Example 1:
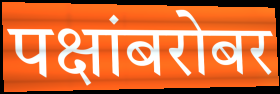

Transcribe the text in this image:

पक्षांबरोबर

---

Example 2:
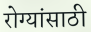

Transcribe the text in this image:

रोग्यांसाठी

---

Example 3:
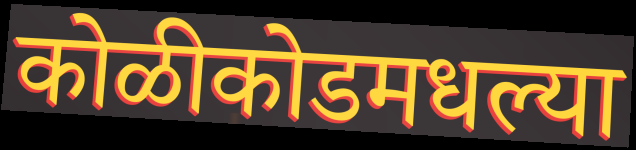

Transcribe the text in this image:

कोळीकोडमधल्या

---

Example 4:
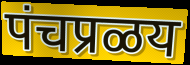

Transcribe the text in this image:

पंचप्रळय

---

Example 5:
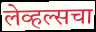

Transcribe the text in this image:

लेव्हल्सचा